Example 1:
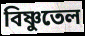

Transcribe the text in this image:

বিষ্ণুতেল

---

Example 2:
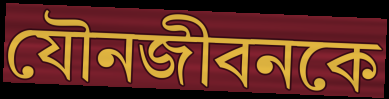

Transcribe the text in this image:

যৌনজীবনকে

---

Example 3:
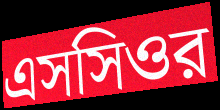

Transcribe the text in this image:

এসসিওর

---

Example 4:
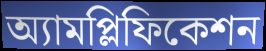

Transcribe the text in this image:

অ্যামপ্লিফিকেশন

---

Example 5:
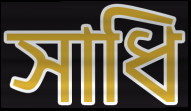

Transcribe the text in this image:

সাধি